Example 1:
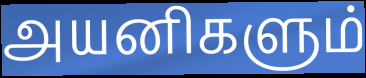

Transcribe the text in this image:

அயனிகளும்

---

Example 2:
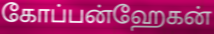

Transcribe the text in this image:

கோப்பன்ஹேகன்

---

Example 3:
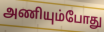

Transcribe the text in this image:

அணியும்போது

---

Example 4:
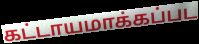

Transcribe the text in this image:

கட்டாயமாக்கப்பட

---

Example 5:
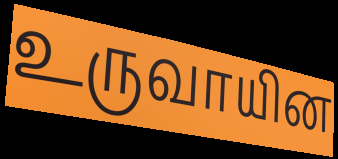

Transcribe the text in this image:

உருவாயின